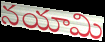
నయామి